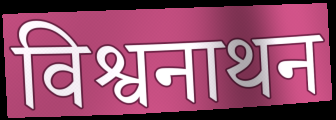
विश्वनाथन